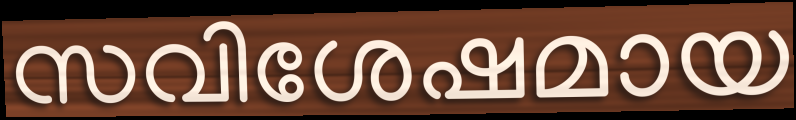
സവിശേഷമായ